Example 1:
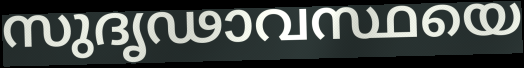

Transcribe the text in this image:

സുദൃഢാവസ്ഥയെ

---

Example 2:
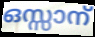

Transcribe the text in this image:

ഒസ്സാന്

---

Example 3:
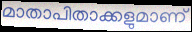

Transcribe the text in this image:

മാതാപിതാക്കളുമാണ്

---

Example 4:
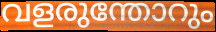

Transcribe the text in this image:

വളരുന്തോറും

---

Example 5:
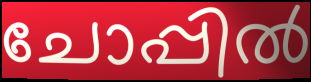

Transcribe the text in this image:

ചോപ്പിൽ